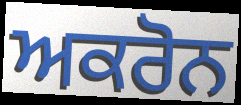
ਅਕਰੋਨ